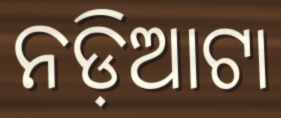
ନଡ଼ିଆଟା